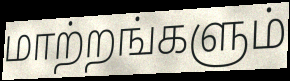
மாற்றங்களும்